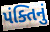
પંક્તિનું